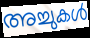
അച്ചുകൾ